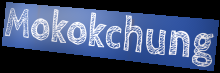
Mokokchung